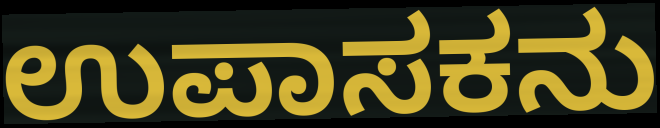
ಉಪಾಸಕನು